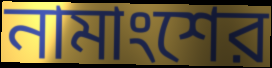
নামাংশের